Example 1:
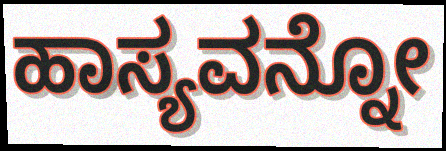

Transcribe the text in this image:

ಹಾಸ್ಯವನ್ನೋ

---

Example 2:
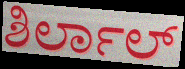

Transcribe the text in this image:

ಶಿರ್ಲಾಲ್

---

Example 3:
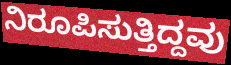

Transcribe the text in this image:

ನಿರೂಪಿಸುತ್ತಿದ್ದವು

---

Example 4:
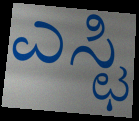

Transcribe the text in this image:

ಎಸ್ಟಿ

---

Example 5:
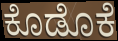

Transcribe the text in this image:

ಕೊಡೊಕೆ